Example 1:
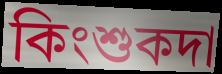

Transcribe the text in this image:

কিংশুকদা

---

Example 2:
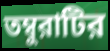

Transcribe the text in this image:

তম্বুরাটির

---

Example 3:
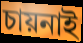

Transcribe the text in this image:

চায়নাই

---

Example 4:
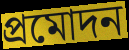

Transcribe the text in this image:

প্রমোদন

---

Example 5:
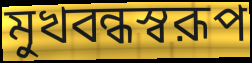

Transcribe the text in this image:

মুখবন্ধস্বরূপ